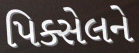
પિક્સેલને